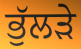
ਭੁੱਲੜੇ